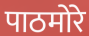
पाठमोरे